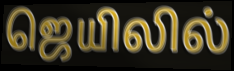
ஜெயிலில்